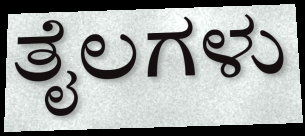
ತೈಲಗಳು